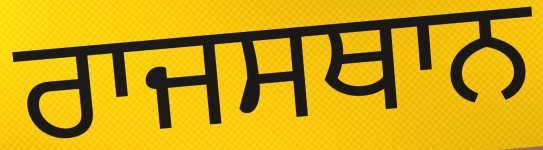
ਰਾਜਸਥਾਨ